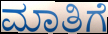
ಮಾತಿಗೆ